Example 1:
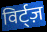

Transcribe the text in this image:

विर्ट्ज़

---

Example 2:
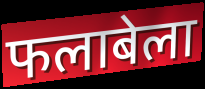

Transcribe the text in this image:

फलाबेला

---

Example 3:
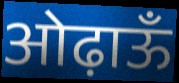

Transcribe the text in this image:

ओढ़ाऊँ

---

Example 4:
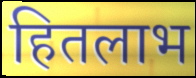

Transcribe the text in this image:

हितलाभ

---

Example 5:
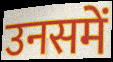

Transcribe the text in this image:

उनसमें